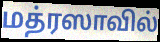
மத்ரஸாவில்